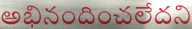
అభినందించలేదని